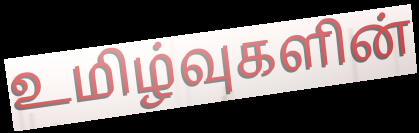
உமிழ்வுகளின்